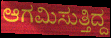
ಆಗಮಿಸುತ್ತಿದ್ದ